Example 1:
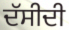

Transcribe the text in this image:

ਦੱਸੀਦੀ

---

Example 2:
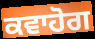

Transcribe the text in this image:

ਕਵਾਹੋਗ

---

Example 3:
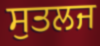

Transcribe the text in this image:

ਸੁਤਲਜ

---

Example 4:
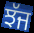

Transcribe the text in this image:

ਝੱਜ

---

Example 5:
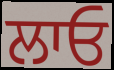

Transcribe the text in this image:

ਲਾਓ